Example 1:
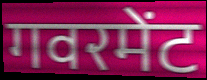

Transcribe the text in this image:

गवरमेंट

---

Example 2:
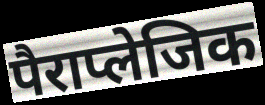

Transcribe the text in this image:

पैराप्लेजिक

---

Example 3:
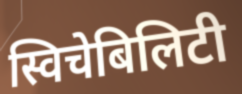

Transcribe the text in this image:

स्विचेबिलिटी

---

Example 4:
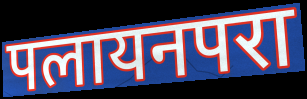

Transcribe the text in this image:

पलायनपरा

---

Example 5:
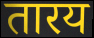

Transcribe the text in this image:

तारय